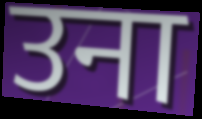
उना